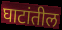
घाटांतील